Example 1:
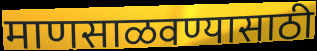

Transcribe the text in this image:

माणसाळवण्यासाठी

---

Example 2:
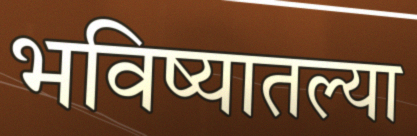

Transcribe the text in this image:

भविष्यातल्या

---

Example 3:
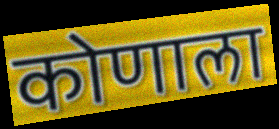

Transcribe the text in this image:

कोणाला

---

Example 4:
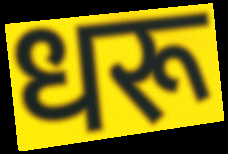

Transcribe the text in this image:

धरू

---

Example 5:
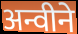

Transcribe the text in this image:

अन्वीने